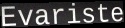
Evariste